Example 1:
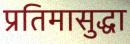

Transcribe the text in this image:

प्रतिमासुद्धा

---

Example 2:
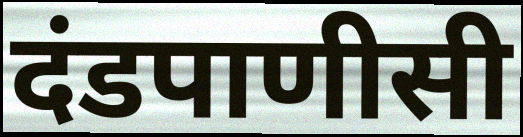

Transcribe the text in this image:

दंडपाणीसी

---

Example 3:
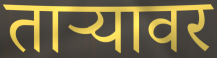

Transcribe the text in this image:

ताऱ्यावर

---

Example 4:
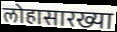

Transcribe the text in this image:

लोहासारख्या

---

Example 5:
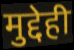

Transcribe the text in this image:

मुद्देही